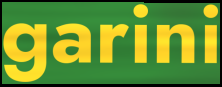
garini